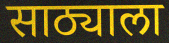
साठ्याला